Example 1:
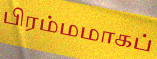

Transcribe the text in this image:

பிரம்மமாகப்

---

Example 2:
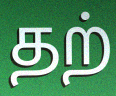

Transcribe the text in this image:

தற்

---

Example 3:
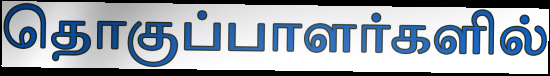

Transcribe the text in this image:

தொகுப்பாளர்களில்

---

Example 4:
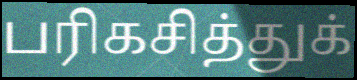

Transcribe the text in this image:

பரிகசித்துக்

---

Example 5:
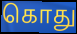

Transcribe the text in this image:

கொது